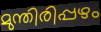
മുന്തിരിപ്പഴം